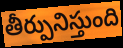
తీర్పునిస్తుంది